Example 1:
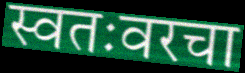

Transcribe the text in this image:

स्वतःवरचा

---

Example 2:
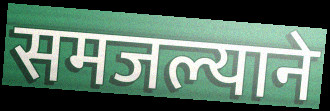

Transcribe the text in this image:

समजल्याने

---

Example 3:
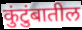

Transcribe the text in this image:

कुंटुंबातील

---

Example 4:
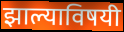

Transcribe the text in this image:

झाल्याविषयी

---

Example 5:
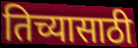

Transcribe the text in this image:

तिच्यासाठी